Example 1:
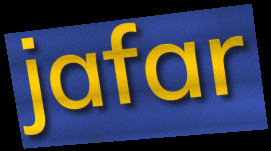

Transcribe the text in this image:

jafar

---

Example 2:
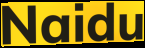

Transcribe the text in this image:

Naidu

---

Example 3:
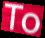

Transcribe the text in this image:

To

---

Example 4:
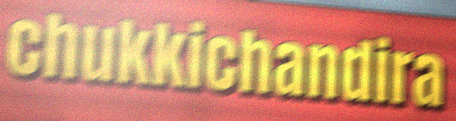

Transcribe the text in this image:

chukkichandira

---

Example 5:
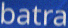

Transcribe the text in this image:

batra